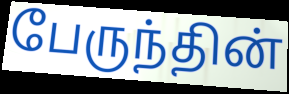
பேருந்தின்